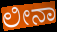
ಲೀನಾ